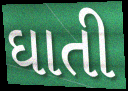
ઘાતી